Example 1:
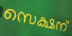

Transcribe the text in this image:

സെക്ഷന്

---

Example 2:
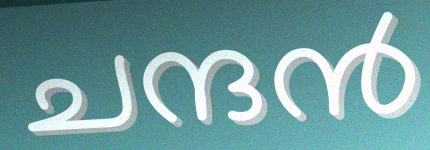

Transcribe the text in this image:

ചന്ദൻ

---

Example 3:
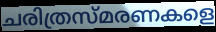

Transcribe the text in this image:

ചരിത്രസ്മരണകളെ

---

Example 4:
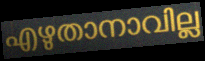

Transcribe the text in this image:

എഴുതാനാവില്ല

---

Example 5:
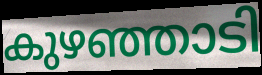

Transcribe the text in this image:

കുഴഞ്ഞാടി